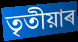
তৃতীয়াৰ